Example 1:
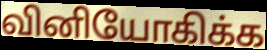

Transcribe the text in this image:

வினியோகிக்க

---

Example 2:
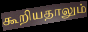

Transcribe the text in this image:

கூறியதாலும்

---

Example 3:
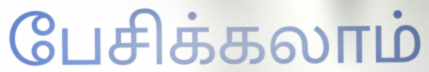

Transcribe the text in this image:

பேசிக்கலாம்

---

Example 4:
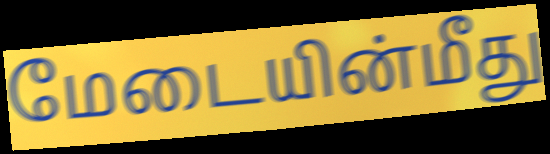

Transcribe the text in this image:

மேடையின்மீது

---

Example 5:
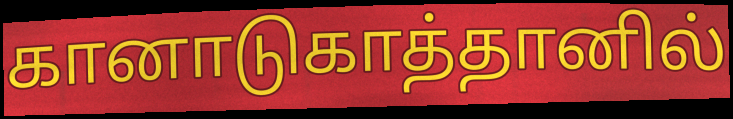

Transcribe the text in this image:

கானாடுகாத்தானில்